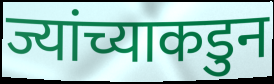
ज्यांच्याकडुन